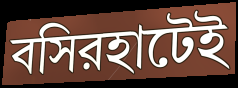
বসিরহাটেই